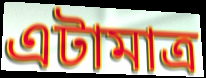
এটামাত্ৰ